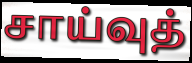
சாய்வுத்